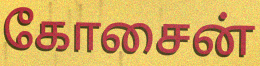
கோசைன்